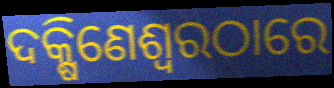
ଦକ୍ଷିଣେଶ୍ୱରଠାରେ